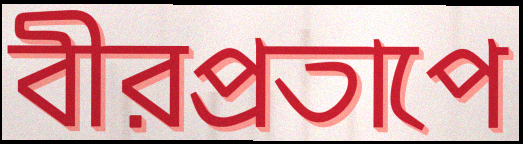
বীরপ্রতাপে